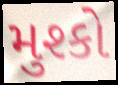
મુશ્કો